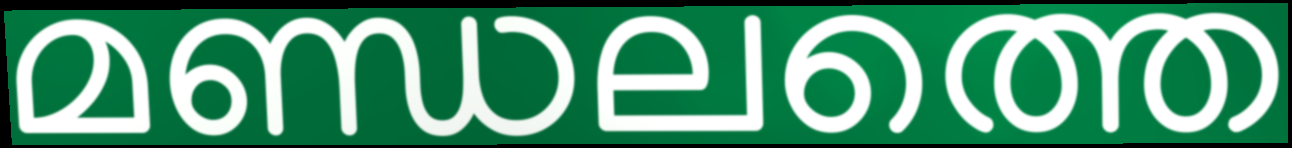
മണ്ഡലത്തെ